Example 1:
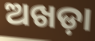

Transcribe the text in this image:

ଅଖଡ଼ା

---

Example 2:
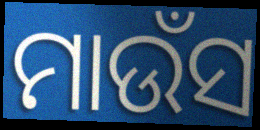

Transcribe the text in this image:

ମାଉଁସ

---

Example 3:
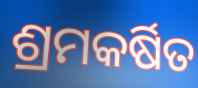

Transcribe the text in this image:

ଶ୍ରମକର୍ଷିତ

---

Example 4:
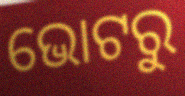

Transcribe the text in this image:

ଭୋଟରୁ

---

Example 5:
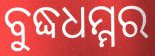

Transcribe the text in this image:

ବୁଦ୍ଧଧମ୍ମର